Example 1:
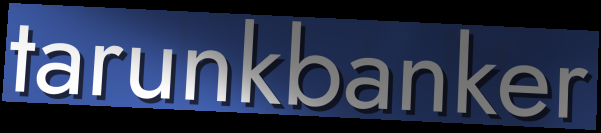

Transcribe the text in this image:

tarunkbanker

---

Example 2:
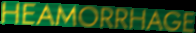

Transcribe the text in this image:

HEAMORRHAGE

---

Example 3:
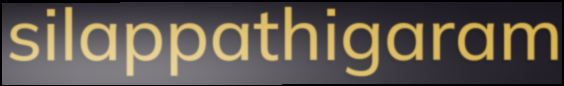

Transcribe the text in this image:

silappathigaram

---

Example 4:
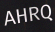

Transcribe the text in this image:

AHRQ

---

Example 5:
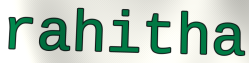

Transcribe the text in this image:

rahitha